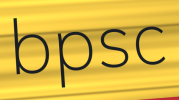
bpsc